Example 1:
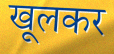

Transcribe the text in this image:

खूलकर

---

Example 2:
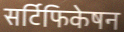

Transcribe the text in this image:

सर्टिफिकेषन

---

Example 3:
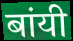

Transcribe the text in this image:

बांयी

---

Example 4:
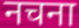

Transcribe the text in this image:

नचना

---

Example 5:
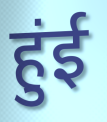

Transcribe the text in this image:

हुंई